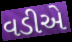
વડીએ